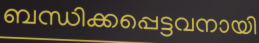
ബന്ധിക്കപ്പെട്ടവനായി